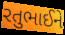
રતુભાઈને